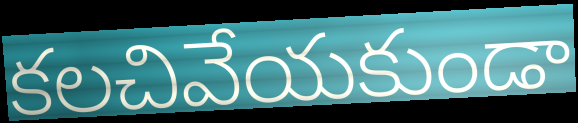
కలచివేయకుండా